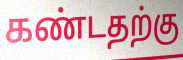
கண்டதற்கு